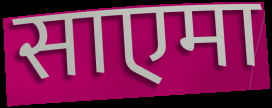
साएमा